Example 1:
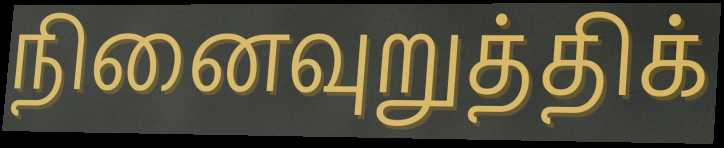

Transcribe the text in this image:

நினைவுறுத்திக்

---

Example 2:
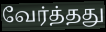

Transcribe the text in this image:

வேர்த்தது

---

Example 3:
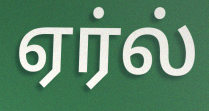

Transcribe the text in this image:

ஏர்ல்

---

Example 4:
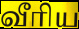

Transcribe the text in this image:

வீரிய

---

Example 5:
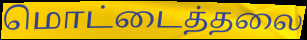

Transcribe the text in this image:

மொட்டைத்தலை